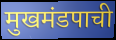
मुखमंडपाची